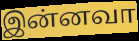
இன்னவா